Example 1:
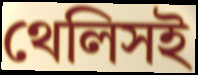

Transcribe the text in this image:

থেলিসই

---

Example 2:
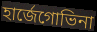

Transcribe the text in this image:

হার্জেগোভিনা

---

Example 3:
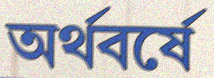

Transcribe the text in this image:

অর্থবর্ষে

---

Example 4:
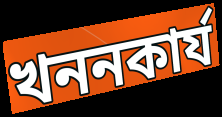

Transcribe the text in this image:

খননকার্য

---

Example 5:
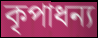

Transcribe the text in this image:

কৃপাধন্য